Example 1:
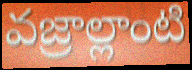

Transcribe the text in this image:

వజ్రాల్లాంటి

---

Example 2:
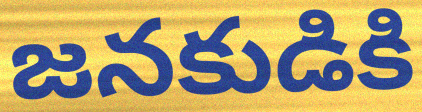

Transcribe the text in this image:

జనకుడికి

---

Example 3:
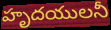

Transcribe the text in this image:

హృదయులనీ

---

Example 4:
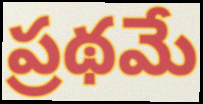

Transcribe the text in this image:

ప్రథమే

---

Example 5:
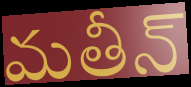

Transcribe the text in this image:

మతీన్